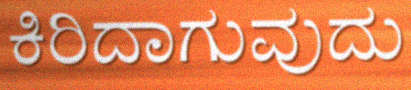
ಕಿರಿದಾಗುವುದು